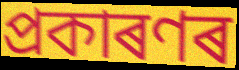
প্ৰকাৰণৰ